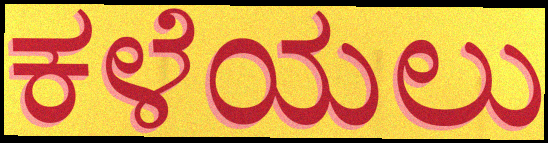
ಕಳೆಯಲು